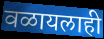
वळायलाही